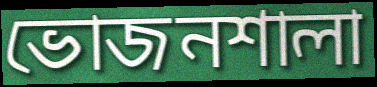
ভোজনশালা